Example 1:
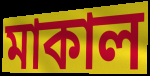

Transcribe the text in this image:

মাকাল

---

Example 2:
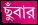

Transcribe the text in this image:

ছুঁবার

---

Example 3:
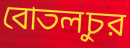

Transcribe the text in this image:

বোতলচুর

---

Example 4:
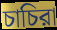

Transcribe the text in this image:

চাচিরা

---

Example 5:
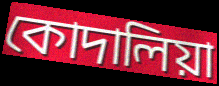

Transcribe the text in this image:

কোদালিয়া